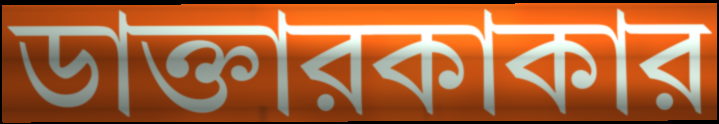
ডাক্তারকাকার